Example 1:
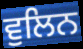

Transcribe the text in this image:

ਵੁਲਿਨ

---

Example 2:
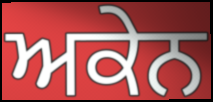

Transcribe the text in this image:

ਅਕੇਨ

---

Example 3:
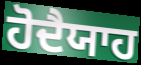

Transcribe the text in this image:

ਹੋਦੈਯਾਹ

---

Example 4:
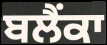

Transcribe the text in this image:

ਬਲੈਂਕਾ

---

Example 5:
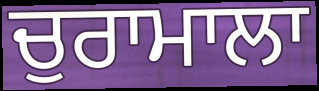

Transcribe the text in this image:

ਚੁਰਾਮਾਲਾ